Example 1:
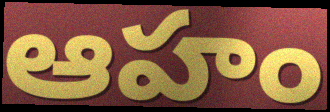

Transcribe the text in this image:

ఆహం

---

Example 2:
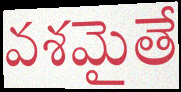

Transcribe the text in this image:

వశమైతే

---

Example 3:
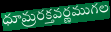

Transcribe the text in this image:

ధూమ్రరక్తవర్ణముగల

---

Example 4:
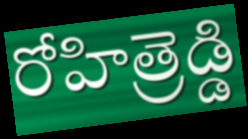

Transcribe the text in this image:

రోహిత్రెడ్డి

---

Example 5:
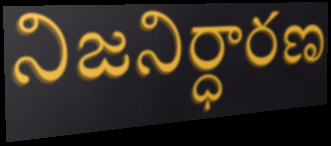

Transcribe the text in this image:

నిజనిర్ధారణ